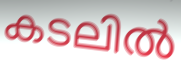
കടലിൽ